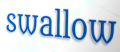
swallow